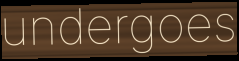
undergoes